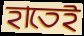
হাতেই